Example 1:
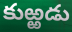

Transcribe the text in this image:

కుఱ్ఱడు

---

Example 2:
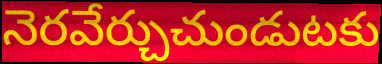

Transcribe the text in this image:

నెరవేర్చుచుండుటకు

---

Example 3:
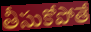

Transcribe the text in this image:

తీసుకోపోతే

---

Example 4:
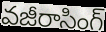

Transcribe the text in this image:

వజీరాసింగ్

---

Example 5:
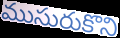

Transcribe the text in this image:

ముసురుకొని